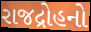
રાજદ્રોહનો